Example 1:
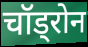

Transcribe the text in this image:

चॉड्रोन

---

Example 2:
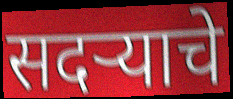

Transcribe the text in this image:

सदऱ्याचे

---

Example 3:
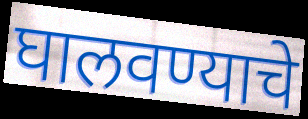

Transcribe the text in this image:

घालवण्याचे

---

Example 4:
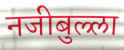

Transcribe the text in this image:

नजीबुल्ला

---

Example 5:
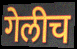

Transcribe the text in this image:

गेलीच